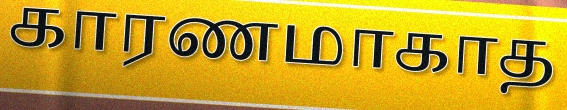
காரணமாகாத